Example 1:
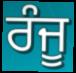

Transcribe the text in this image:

ਰੰਜੂ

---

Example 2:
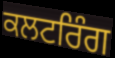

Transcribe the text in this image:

ਕਲਟਰਿੰਗ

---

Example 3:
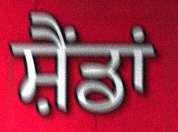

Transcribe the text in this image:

ਸ਼ੈਂਡਾਂ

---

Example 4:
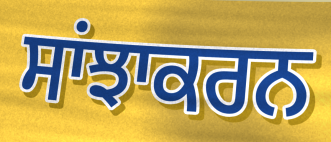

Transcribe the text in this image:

ਸਾਂਝਾਕਰਨ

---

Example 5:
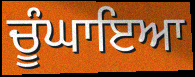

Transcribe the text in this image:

ਚੂੰਘਾਇਆ